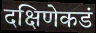
दक्षिणेकडं